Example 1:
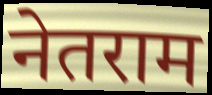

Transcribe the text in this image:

नेतराम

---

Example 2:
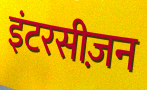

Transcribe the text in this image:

इंटरसीज़न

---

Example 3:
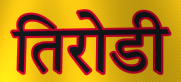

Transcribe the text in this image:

तिरोडी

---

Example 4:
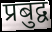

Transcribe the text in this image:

प्रबुद्व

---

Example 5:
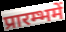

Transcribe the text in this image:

प्रारम्भमें